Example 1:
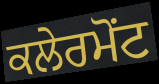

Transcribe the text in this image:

ਕਲੇਰਮੋਂਟ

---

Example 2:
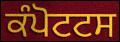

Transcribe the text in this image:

ਕੰਪੋਟਟਸ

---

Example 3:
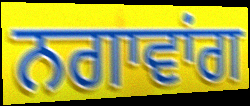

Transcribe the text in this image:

ਨਗਾਵਾਂਗ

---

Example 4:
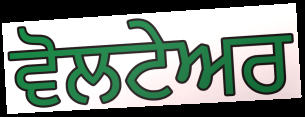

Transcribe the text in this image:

ਵੋਲਟੇਅਰ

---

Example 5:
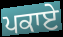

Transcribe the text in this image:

ਪਕਾਏ